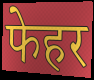
फेहर